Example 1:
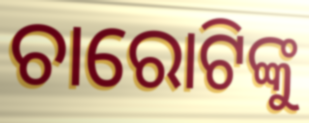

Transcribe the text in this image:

ଚାରୋଟିଙ୍କୁ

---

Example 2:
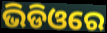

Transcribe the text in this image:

ଭିଡିଓରେ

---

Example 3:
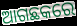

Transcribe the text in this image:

ଆଗଛକରେ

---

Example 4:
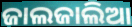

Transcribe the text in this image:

ଜାଲଜାଲିଆ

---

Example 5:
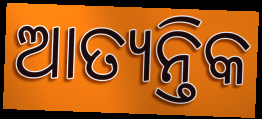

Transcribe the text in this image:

ଆତ୍ୟନ୍ତିକ